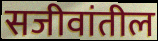
सजीवांतील